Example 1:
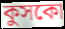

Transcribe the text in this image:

কুসকো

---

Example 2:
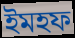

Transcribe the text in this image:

ইমহফ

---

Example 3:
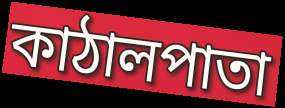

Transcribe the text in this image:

কাঠালপাতা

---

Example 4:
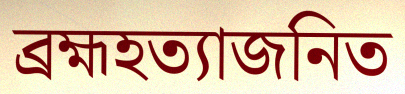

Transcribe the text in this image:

ব্রহ্মহত্যাজনিত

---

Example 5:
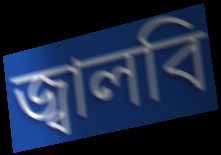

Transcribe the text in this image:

জ্বালবি